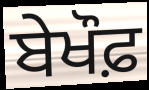
ਬੇਖੌਫ਼